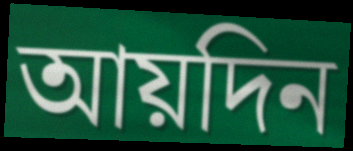
আয়দিন